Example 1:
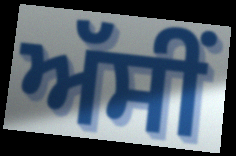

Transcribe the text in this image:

ਅੱਸੀਂ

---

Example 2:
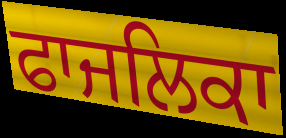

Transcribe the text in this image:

ਫਾਜਲਿਕਾ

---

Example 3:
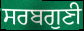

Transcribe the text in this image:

ਸਰਬਗੁਣੀ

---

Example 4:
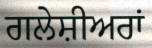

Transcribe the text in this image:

ਗਲੇਸ਼ੀਅਰਾਂ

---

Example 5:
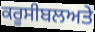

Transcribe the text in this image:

ਕਰੂਸੀਬਲਅਤੇ